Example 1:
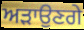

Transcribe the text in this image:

ਅੜਾਉਣਗੇ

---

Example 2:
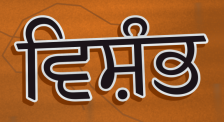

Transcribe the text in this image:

ਵਿਸ਼ੰਭ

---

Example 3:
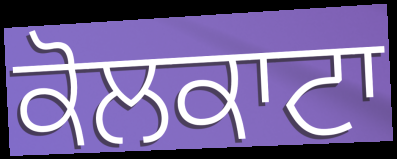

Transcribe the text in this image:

ਕੋਲਕਾਟਾ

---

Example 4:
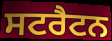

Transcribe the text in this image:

ਸਟਰੈਟਨ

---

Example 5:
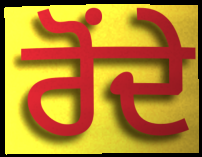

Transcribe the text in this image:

ਰੋਂਦੇ